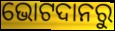
ଭୋଟଦାନରୁ